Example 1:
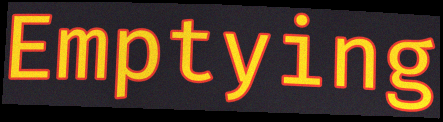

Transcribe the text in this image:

Emptying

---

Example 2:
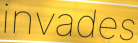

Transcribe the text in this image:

invades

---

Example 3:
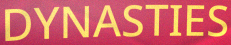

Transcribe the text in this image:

DYNASTIES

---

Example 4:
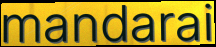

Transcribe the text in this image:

mandarai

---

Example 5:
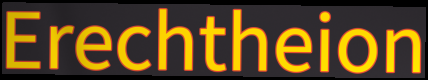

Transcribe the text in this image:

Erechtheion